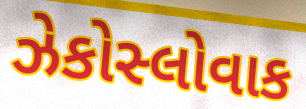
ઝેકોસ્લોવાક